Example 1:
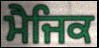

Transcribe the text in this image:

ਮੈਜਿਕ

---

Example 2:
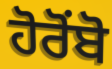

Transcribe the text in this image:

ਹੋਰੋਂਬੋ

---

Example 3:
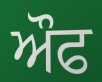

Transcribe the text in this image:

ਔਫ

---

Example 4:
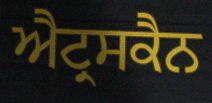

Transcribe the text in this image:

ਐਟ੍ਰਸਕੈਨ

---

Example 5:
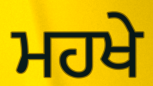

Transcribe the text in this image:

ਮਹਖੇ